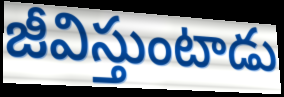
జీవిస్తుంటాడు